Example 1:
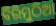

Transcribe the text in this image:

ବିରିମୁଠିଆ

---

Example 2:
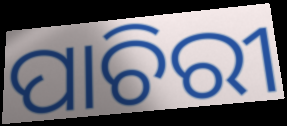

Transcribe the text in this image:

ପାଚିରୀ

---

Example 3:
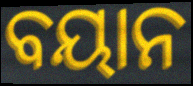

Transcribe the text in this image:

ବୟାନ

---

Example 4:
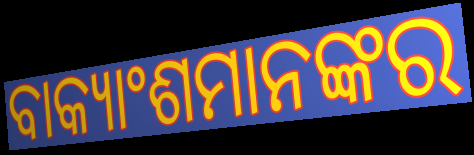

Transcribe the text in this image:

ବାକ୍ୟାଂଶମାନଙ୍କର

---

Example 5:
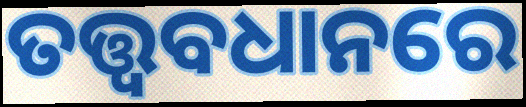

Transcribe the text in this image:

ତତ୍ତ୍ଵବଧାନରେ